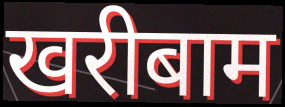
खरीबाम